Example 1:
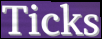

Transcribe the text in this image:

Ticks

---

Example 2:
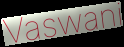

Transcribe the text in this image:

Vaswani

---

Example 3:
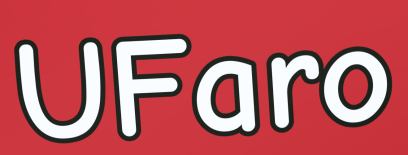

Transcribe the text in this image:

UFaro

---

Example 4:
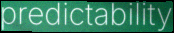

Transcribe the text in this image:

predictability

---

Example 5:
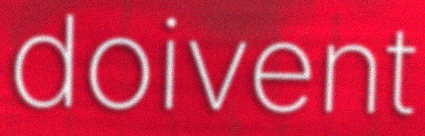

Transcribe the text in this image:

doivent